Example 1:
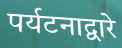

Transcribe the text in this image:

पर्यटनाद्वारे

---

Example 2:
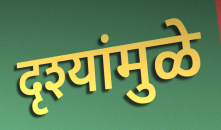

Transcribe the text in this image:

दृश्यांमुळे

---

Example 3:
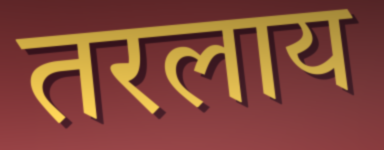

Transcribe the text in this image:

तरलाय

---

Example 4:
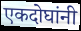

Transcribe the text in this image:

एकदोघांनी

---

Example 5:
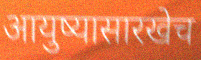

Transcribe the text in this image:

आयुष्यासारखेच